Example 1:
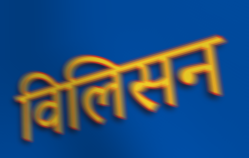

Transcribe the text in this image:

विलिसन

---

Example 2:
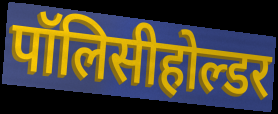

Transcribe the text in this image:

पॉलिसीहोल्डर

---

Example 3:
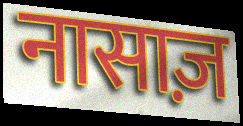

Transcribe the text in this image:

नासाज़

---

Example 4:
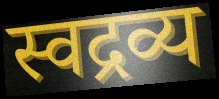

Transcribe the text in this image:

स्वद्रव्य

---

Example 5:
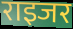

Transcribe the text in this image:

राइजर